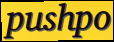
pushpo